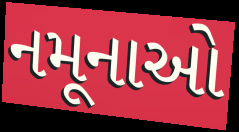
નમૂનાઓ